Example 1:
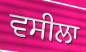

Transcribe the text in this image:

ਵਸੀਲਾ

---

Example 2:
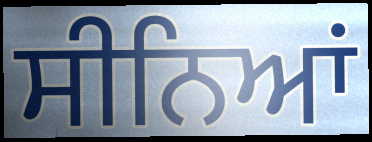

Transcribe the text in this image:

ਸੀਨਿਆਂ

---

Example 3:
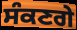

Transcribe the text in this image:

ਸੰਕਣਗੇ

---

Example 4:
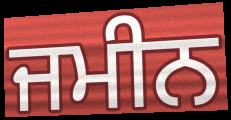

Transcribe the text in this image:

ਜਮੀਨ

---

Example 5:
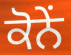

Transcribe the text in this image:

ਕੋਨੇਂ